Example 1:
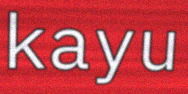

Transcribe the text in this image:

kayu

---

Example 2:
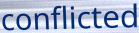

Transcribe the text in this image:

conflicted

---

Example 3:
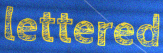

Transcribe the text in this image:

lettered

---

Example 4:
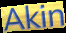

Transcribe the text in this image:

Akin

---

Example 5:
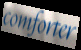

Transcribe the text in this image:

comforter